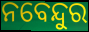
ନବେନ୍ଦୁର